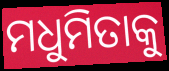
ମଧୁମିତାକୁ